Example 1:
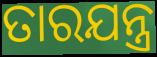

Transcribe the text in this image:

ତାରଯନ୍ତ୍ର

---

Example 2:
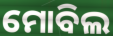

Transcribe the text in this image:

ମୋବିଲ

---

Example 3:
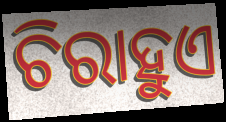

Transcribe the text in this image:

ଚିରାହୁଏ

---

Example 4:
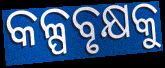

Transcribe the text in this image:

କଳ୍ପବୃକ୍ଷକୁ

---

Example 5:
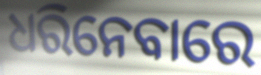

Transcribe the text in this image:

ଧରିନେବାରେ